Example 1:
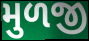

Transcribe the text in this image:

મુળજી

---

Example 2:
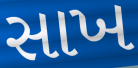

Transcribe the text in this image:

સાખ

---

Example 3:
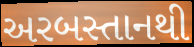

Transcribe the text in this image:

અરબસ્તાનથી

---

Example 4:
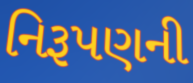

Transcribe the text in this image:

નિરૂપણની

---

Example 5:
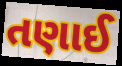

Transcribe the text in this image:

તણાઈ